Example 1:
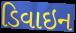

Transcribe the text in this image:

ડિવાઇન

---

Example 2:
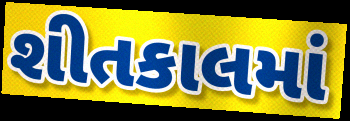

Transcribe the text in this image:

શીતકાલમાં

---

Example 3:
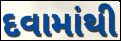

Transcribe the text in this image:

દવામાંથી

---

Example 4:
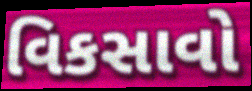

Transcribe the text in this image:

વિકસાવો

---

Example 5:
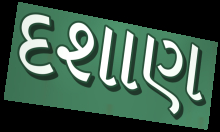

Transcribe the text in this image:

દશાણ